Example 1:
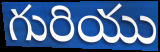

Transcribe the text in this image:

గురియు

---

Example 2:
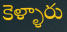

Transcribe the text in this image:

కెళ్ళారు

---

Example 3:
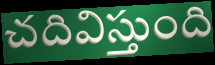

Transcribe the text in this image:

చదివిస్తుంది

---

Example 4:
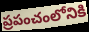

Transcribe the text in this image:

ప్రపంచంలోనికి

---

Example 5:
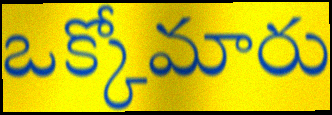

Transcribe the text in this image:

ఒక్కోమారు